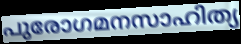
പുരോഗമനസാഹിത്യ